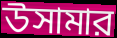
উসামার